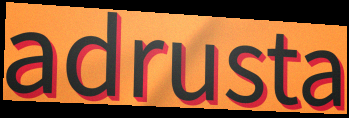
adrusta